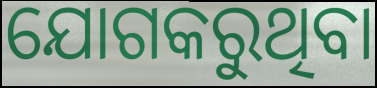
ଯୋଗକରୁଥିବା